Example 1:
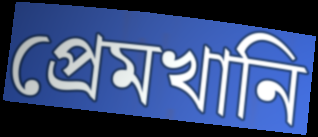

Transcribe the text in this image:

প্রেমখানি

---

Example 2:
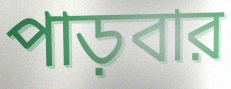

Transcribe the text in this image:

পাড়বার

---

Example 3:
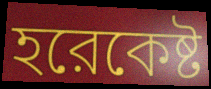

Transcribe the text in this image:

হরেকেষ্ট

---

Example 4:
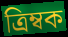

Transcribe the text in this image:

ত্রিম্বক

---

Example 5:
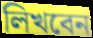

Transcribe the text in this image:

লিখবেন